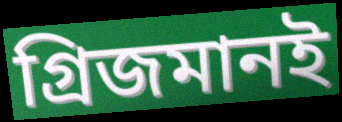
গ্রিজমানই